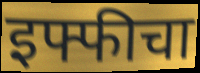
इफ्फीचा